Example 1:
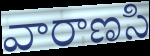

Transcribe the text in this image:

వారాణసి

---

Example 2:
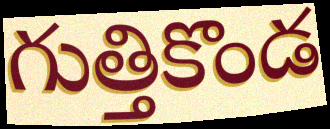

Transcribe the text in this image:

గుత్తికొండ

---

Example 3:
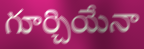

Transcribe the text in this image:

గూర్చియేనా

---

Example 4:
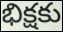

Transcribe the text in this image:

భిక్షకు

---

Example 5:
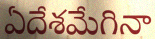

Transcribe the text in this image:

ఏదేశమేగినా